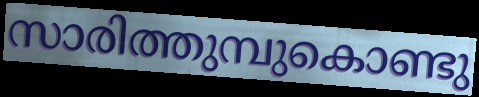
സാരിത്തുമ്പുകൊണ്ടു